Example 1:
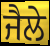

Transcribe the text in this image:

ਜੈਲੇ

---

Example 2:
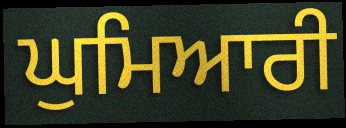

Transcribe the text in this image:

ਘੁਮਿਆਰੀ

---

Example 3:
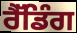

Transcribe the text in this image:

ਰੈੱਡਿੰਗ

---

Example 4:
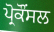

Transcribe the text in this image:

ਪ੍ਰੋਕੌਂਸਲ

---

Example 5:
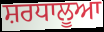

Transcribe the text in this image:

ਸ਼ਰਧਾਲੂਆ